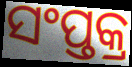
ସଂପ୍ତକ୍ର